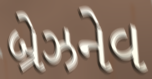
બ્રેઝનેવ